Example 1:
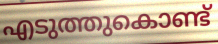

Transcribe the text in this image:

എടുത്തുകൊണ്ട്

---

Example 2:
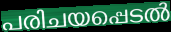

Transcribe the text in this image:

പരിചയപ്പെടൽ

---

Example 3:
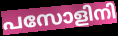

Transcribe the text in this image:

പസോളിനി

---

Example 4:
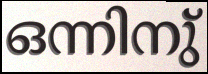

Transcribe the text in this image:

ഒന്നിനു്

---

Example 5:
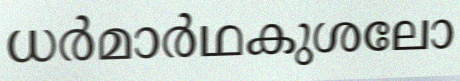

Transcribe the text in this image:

ധർമാർഥകുശലോ